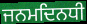
ਜਨਮਦਿਨਧੀ